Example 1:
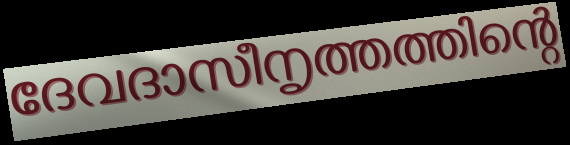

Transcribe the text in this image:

ദേവദാസീനൃത്തത്തിന്റെ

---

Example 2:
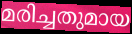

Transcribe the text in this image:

മരിച്ചതുമായ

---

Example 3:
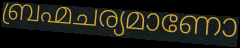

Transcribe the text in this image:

ബ്രഹ്മചര്യമാണോ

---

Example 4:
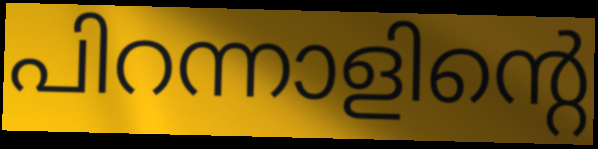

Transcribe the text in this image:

പിറന്നാളിന്റെ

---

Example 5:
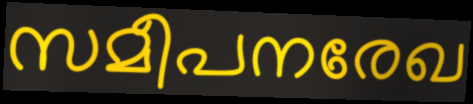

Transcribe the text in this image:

സമീപനരേഖ